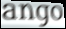
ango